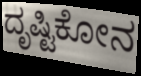
ದೃಷ್ಟಿಕೋನ